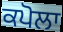
ਕਪੋਲਾ